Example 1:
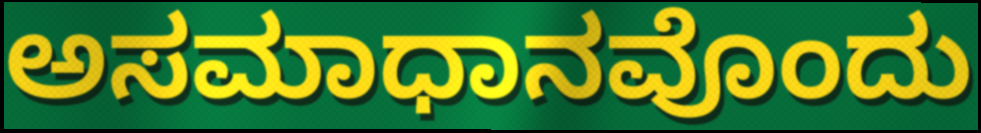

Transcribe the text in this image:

ಅಸಮಾಧಾನವೊಂದು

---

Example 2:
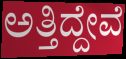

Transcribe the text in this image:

ಅತ್ತಿದ್ದೇವೆ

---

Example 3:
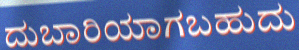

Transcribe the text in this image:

ದುಬಾರಿಯಾಗಬಹುದು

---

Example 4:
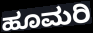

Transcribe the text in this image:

ಹೂಮರಿ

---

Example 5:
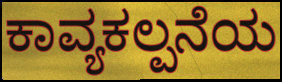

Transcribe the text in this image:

ಕಾವ್ಯಕಲ್ಪನೆಯ